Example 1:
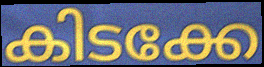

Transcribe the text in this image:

കിടക്കേ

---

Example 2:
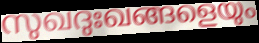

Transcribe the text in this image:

സുഖദുഃഖങ്ങളെയും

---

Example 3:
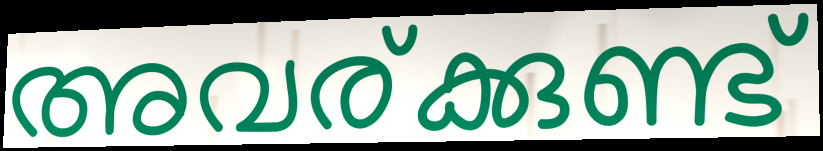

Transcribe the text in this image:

അവര്ക്കുണ്ട്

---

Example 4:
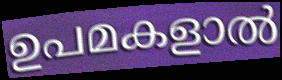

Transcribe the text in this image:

ഉപമകളാൽ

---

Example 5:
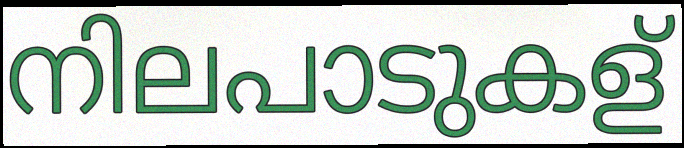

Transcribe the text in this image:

നിലപാടുകള്